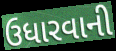
ઉધારવાની